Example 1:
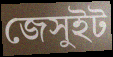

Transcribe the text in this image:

জেসুইট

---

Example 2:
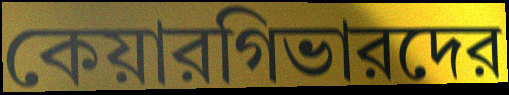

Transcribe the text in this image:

কেয়ারগিভারদের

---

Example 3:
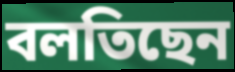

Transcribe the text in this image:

বলতিছেন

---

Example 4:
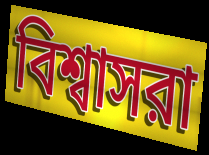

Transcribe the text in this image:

বিশ্বাসরা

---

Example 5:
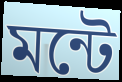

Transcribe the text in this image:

মন্টে